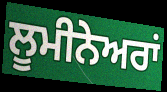
ਲੂਮੀਨੇਅਰਾਂ